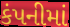
કંપનીમાં